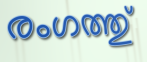
രംഗത്തു്